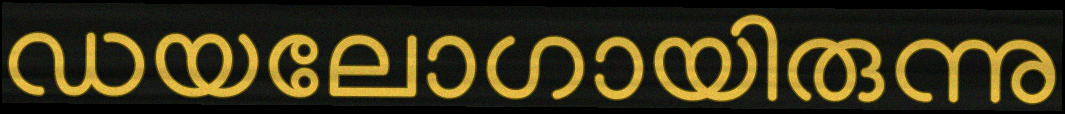
ഡയലോഗായിരുന്നു